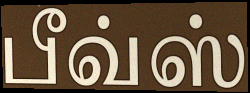
பீவ்ஸ்